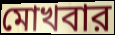
মোখবার